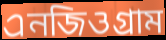
এনজিওগ্রাম